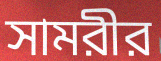
সামরীর